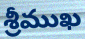
శ్రీముఖ